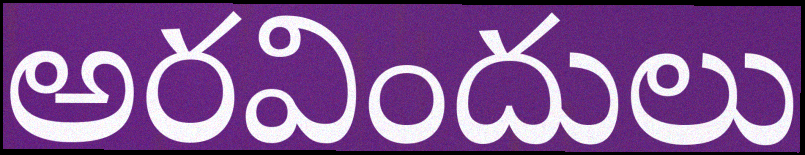
అరవిందులు